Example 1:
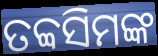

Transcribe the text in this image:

ତବ୍ବସିମଙ୍କ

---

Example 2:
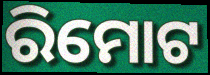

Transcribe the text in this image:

ରିମୋଟ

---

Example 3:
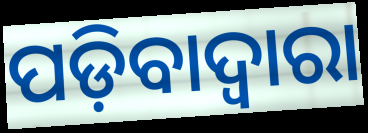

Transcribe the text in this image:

ପଡ଼ିବାଦ୍ୱାରା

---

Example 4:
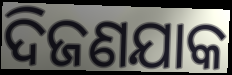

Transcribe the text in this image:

ଦିଜଣଯାକ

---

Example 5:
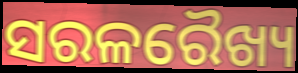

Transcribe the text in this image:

ସରଳରୈଖ୍ୟ